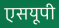
एसयूपी